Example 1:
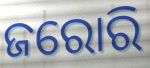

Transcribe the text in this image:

ଜରୋରି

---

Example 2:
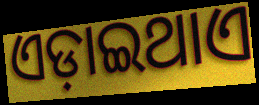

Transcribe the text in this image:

ଏଡ଼ାଇଥାଏ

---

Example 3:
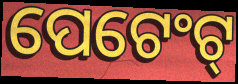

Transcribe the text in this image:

ପେଟେଂଟ୍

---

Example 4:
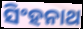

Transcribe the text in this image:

ସିଂହନାଥ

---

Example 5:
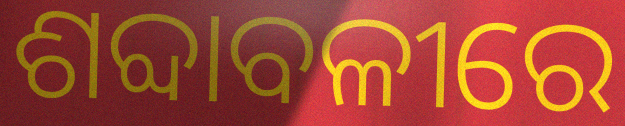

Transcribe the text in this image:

ଶବ୍ଦାବଳୀରେ